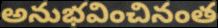
అనుభవించినంత